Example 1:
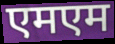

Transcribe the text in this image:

एमएम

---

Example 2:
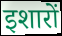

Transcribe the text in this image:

इशारों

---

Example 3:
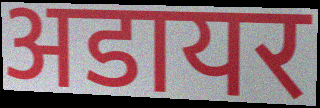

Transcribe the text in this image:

अडायर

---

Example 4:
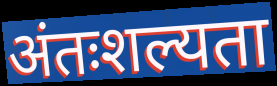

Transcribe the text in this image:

अंतःशल्यता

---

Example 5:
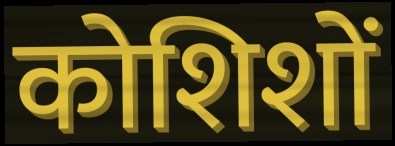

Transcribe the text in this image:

कोशिशों